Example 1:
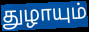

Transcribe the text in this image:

துழாயும்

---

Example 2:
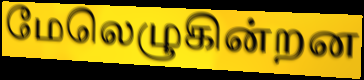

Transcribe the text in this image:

மேலெழுகின்றன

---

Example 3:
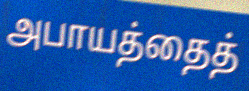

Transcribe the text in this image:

அபாயத்தைத்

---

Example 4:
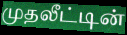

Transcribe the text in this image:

முதலீட்டின்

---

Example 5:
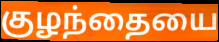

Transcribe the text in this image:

குழந்தையை